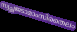
സ്വച്ഛജടാമാംസിതൈലം